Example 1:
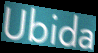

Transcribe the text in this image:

Ubida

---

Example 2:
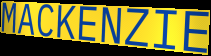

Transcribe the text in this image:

MACKENZIE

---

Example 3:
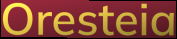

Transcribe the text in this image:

Oresteia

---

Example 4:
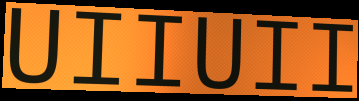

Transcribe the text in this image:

UIIUII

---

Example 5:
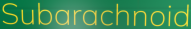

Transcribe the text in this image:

Subarachnoid